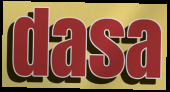
dasa